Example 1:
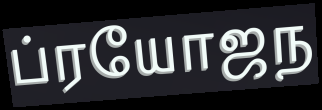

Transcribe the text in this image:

ப்ரயோஜந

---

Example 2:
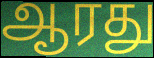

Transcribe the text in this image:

ஆரது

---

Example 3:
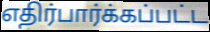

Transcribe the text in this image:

எதிர்பார்க்கப்பட்ட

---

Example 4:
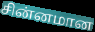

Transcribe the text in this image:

சின்னமான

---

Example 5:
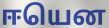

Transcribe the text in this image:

ஈயென